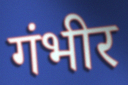
गंभीर